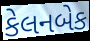
કેલનબેક